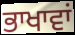
ਭਾਖਾਵਾਂ